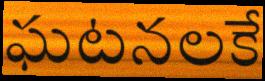
ఘటనలకే